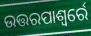
ଉତ୍ତରପାଶ୍ୱର୍ରେ